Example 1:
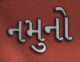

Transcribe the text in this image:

નમુનો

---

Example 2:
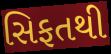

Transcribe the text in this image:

સિફતથી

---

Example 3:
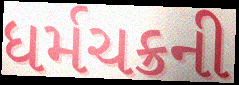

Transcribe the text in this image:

ધર્મચક્રની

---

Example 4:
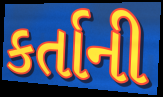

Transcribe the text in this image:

કર્તાની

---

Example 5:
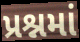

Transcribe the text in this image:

પ્રશ્નમાં